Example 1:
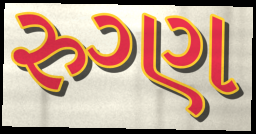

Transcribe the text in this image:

રુગ્ણ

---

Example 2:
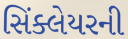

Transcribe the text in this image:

સિંક્લેયરની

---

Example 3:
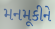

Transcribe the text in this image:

મનમૂકીને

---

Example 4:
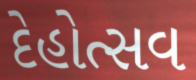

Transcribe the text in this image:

દેહોત્સવ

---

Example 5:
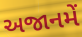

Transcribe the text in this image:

અજાનમેં